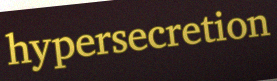
hypersecretion